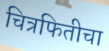
चित्रफितीचा